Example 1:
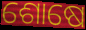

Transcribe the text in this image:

ଶୋଷେ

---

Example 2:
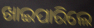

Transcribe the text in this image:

ଖାଇପାରିଲେ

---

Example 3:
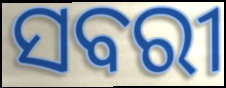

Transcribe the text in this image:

ସବରୀ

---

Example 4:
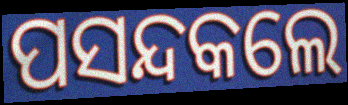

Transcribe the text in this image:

ପସନ୍ଦକଲେ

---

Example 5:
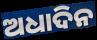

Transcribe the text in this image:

ଅଧାଦିନ